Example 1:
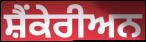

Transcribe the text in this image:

ਸ਼ੈਂਕੇਰੀਅਨ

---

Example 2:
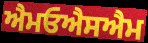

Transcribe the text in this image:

ਐਮਓਐਸਐਮ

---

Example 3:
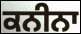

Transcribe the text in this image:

ਕਨੀਨਾ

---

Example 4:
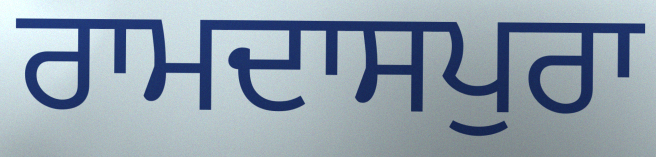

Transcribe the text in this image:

ਰਾਮਦਾਸਪੁਰਾ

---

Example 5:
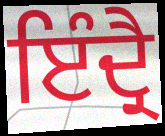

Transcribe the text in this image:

ਇੰਦ੍ਰੈ